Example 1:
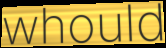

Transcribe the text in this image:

whould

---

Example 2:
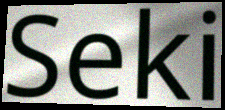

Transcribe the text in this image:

Seki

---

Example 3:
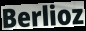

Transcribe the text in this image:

Berlioz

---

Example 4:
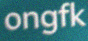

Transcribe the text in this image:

ongfk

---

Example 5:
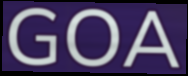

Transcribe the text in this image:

GOA